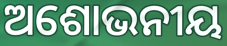
ଅଶୋଭନୀୟ